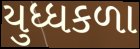
યુધ્ધકળા